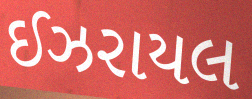
ઈઝરાયલ